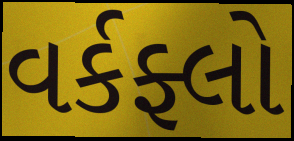
વર્કફ્લો